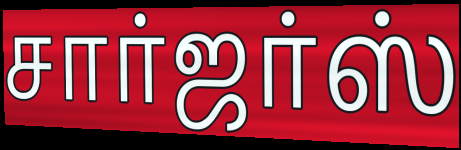
சார்ஜர்ஸ்